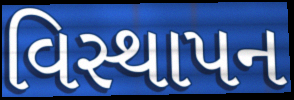
વિસ્થાપન